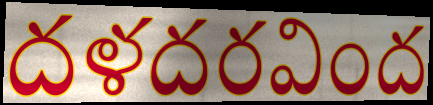
దళదరవింద